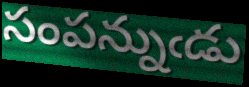
సంపన్నుఁడు